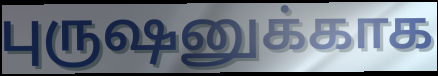
புருஷனுக்காக